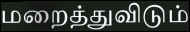
மறைத்துவிடும்